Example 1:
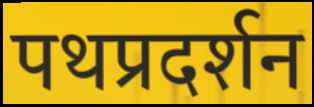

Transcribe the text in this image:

पथप्रदर्शन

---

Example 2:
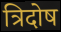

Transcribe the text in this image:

त्रिदोष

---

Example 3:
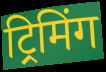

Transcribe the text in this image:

ट्रिमिंग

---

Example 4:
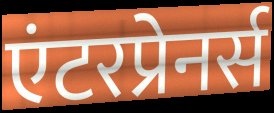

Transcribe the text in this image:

एंटरप्रेनर्स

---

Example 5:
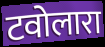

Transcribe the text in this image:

टवोलारा